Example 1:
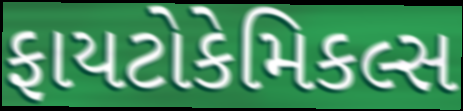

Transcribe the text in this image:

ફાયટોકેમિકલ્સ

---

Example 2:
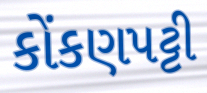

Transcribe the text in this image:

કોંકણપટ્ટી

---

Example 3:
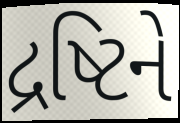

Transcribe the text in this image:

દ્રષ્ટિને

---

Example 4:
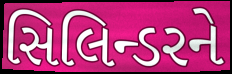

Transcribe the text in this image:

સિલિન્ડરને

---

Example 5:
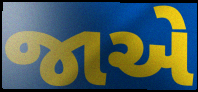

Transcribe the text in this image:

જાએ